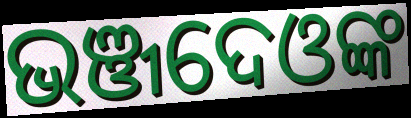
ଭଞ୍ଜଦେଓଙ୍କ